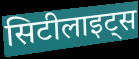
सिटीलाइट्स